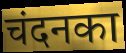
चंदनका